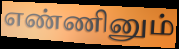
எண்ணினும்